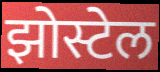
झोस्टेल